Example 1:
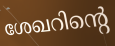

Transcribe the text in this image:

ശേഖറിന്റെ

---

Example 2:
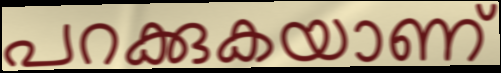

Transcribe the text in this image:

പറക്കുകയാണ്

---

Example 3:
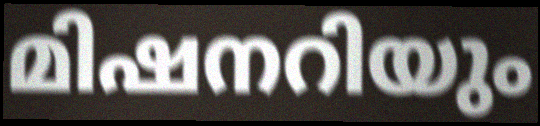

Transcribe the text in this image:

മിഷനറിയും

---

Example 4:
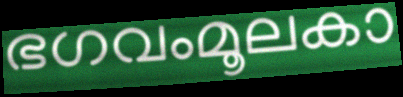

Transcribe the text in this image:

ഭഗവംമൂലകാ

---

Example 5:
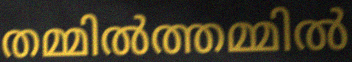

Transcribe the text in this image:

തമ്മിൽത്തമ്മിൽ